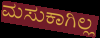
ಮಸುಕಾಗಿಲ್ಲ